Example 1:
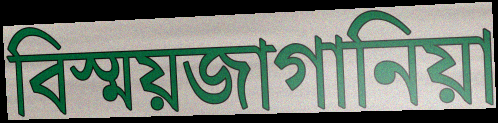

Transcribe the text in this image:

বিস্ময়জাগানিয়া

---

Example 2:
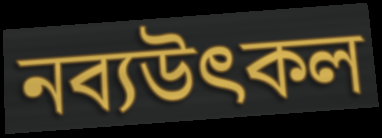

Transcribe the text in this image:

নব্যউৎকল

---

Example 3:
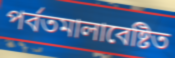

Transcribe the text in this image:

পর্বতমালাবেষ্টিত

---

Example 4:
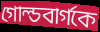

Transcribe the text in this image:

গোল্ডবার্গকে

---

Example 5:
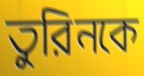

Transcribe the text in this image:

তুরিনকে